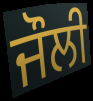
ਜੌਲੀ